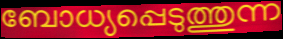
ബോധ്യപ്പെടുത്തുന്ന